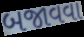
બજાવવા